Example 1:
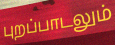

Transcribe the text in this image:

புறப்பாடலும்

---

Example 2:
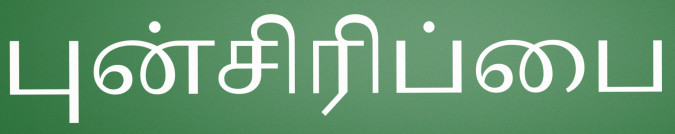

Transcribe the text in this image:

புன்சிரிப்பை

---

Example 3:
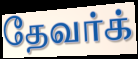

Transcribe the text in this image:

தேவர்க்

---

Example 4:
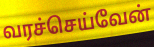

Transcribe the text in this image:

வரச்செய்வேன்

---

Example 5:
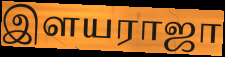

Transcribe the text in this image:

இளயராஜா